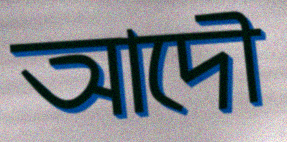
আদৌ